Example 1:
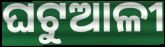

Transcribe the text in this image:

ଘଟୁଆଳୀ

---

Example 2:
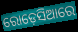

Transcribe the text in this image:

ରୋଡ଼େସିଆରେ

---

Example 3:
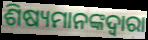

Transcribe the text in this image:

ଶିଷ୍ୟମାନଙ୍କଦ୍ୱାରା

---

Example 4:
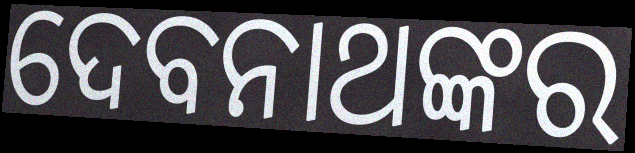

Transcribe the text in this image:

ଦେବନାଥଙ୍କର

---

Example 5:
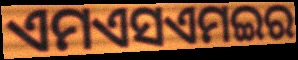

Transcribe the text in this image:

ଏମଏସଏମଇର